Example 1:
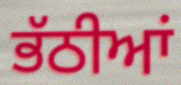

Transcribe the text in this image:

ਭੱਠੀਆਂ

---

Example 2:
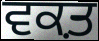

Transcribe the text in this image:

ਵਕ਼ਤ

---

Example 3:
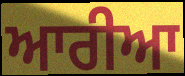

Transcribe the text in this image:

ਆਰੀਆ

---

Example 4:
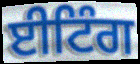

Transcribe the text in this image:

ਈਟਿੰਗ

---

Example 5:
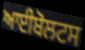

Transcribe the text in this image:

ਆਈਬੋਲਟਸ